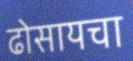
ढोसायचा